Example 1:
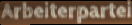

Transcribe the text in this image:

Arbeiterpartei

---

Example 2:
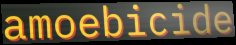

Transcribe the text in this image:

amoebicide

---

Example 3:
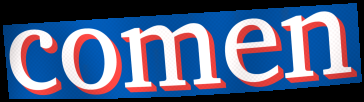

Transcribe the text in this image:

comen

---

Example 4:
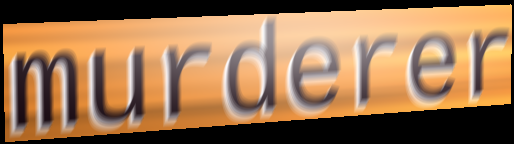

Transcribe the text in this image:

murderer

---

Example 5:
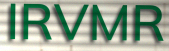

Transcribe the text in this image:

IRVMR